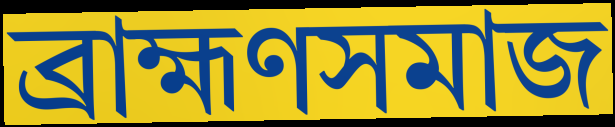
ব্রাহ্মণসমাজ